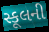
સ્કૂલની